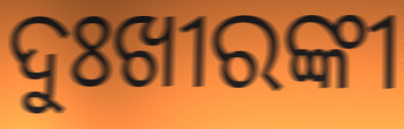
ଦୁଃଖୀରଙ୍କୀ